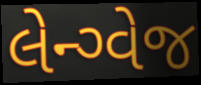
લેન્ગ્વેજ